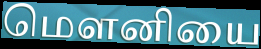
மௌனியை